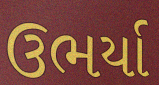
ઉભર્યા